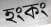
হংকং